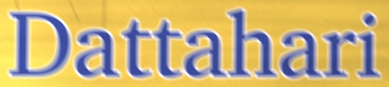
Dattahari